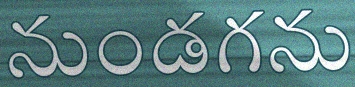
నుండగను